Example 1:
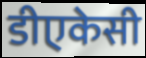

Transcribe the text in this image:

डीएकेसी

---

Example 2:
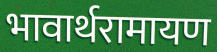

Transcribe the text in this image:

भावार्थरामायण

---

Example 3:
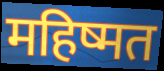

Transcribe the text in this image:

महिष्मत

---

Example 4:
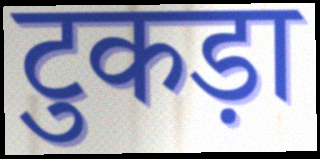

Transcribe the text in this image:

टुकड़ा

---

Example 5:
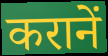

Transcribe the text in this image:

करानें